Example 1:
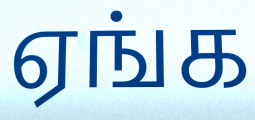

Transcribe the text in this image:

ஏங்க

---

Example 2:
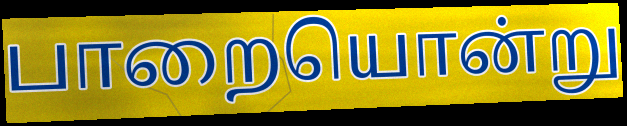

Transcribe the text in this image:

பாறையொன்று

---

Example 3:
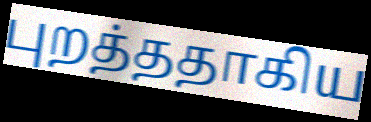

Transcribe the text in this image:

புறத்ததாகிய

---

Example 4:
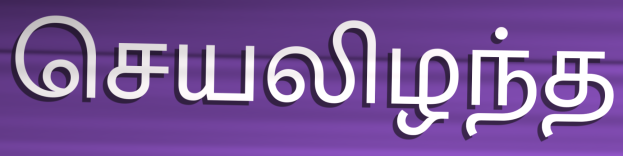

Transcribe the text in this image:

செயலிழந்த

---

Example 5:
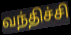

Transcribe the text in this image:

வந்திச்சி